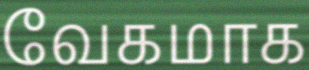
வேகமாக